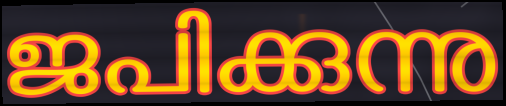
ജപിക്കുന്നു